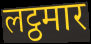
लट्ठमार